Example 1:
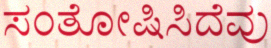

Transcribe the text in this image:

ಸಂತೋಷಿಸಿದೆವು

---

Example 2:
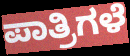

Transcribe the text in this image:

ಪಾತ್ರಿಗಳೆ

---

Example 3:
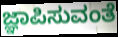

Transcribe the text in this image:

ಜ್ಞಾಪಿಸುವಂತೆ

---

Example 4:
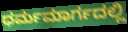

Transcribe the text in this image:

ಧರ್ಮಮಾರ್ಗದಲ್ಲಿ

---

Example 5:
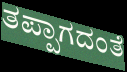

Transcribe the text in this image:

ತಪ್ಪಾಗದಂತೆ